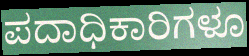
ಪದಾಧಿಕಾರಿಗಳೂ